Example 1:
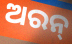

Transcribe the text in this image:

ଅରନ୍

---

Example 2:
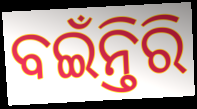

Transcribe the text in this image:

ବଇଁନ୍ତିରି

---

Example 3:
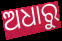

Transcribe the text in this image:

ଅଧାରୁ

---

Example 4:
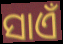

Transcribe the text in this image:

ସାଏଁ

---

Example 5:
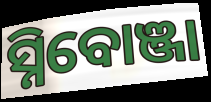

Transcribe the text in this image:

ସ୍ନିବୋଞ୍ଜା